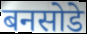
बनसोडे